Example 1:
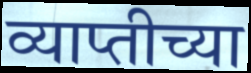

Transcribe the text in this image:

व्याप्तीच्या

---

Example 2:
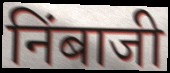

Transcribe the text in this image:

निंबाजी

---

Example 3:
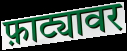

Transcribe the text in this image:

फ़ाट्यावर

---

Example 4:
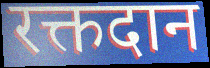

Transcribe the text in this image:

रक्तदान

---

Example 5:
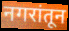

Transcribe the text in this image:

नगरांतून